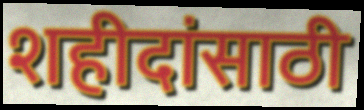
शहीदांसाठी